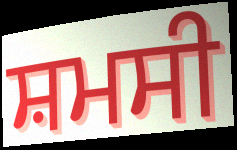
ਸ਼ਮਸੀ